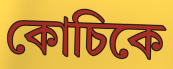
কোচিকে